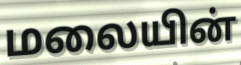
மலையின்